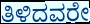
ತಿಳಿದವರೇ